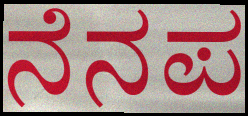
ನೆನಪ